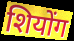
शियोंग